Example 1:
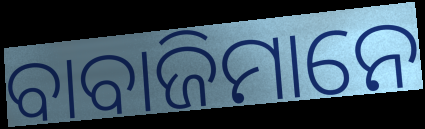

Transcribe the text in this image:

ବାବାଜିମାନେ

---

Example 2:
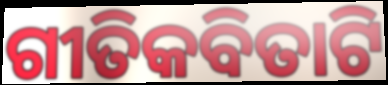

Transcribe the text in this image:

ଗୀତିକବିତାଟି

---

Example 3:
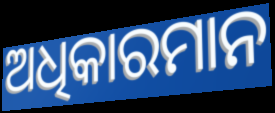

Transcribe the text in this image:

ଅଧିକାରମାନ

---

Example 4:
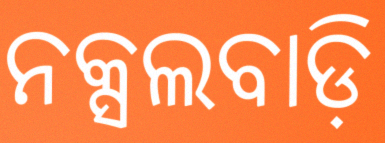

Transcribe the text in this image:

ନକ୍ସଲବାଡ଼ି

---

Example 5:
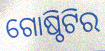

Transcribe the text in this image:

ଗୋଷ୍ଠିଟିର